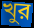
খুর